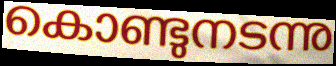
കൊണ്ടുനടന്നു